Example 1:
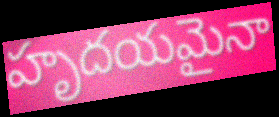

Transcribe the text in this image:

హృదయమైనా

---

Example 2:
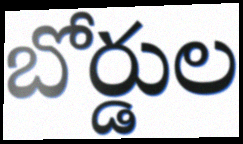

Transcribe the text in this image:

బోర్డుల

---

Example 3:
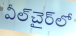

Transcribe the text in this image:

వీల్‌చైర్‌లో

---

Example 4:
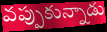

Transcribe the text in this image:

వప్పుకున్నాడు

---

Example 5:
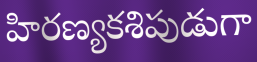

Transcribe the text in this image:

హిరణ్యకశిపుడుగా